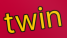
twin